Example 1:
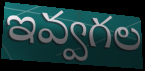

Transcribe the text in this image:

ఇవ్వగల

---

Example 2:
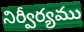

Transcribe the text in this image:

నిర్వీర్యము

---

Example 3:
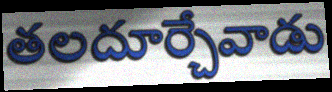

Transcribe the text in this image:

తలదూర్చేవాడు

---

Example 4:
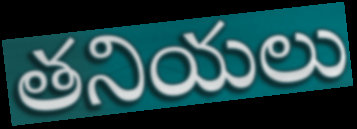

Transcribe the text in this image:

తనియలు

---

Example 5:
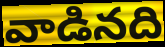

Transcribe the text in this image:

వాడినది